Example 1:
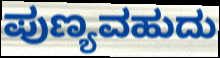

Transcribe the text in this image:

ಪುಣ್ಯವಹುದು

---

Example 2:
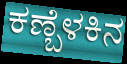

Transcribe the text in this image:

ಕಣ್ಬೆಳಕಿನ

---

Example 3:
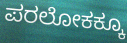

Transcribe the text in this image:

ಪರಲೋಕಕ್ಕೂ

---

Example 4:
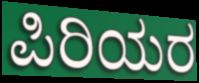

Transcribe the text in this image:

ಪಿರಿಯರ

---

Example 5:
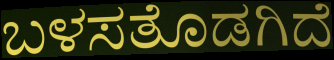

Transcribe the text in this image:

ಬಳಸತೊಡಗಿದೆ